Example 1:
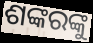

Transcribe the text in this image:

ଶଙ୍କରଙ୍କୁ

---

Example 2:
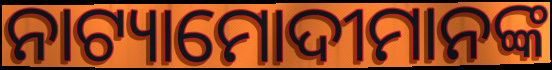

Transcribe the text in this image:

ନାଟ୍ୟାମୋଦୀମାନଙ୍କ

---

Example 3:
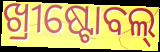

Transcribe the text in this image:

ଖ୍ରୀଷ୍ଟୋବଲ୍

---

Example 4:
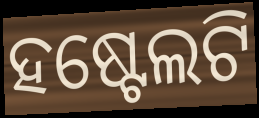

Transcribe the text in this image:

ହଷ୍ଟେଲଟି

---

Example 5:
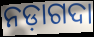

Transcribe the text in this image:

ନଡ଼ାଗଦା